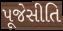
પૂજેસીતિ